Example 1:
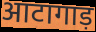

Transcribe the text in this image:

आटागाड़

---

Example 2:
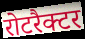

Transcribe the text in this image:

रोटरैक्टर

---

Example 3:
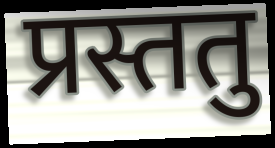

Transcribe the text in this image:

प्रस्ततु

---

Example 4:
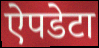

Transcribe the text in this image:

ऐपडेटा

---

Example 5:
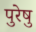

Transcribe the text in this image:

पुरेषु